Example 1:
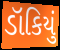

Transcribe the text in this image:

ડૉકિયું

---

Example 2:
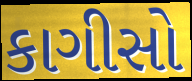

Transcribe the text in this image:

કાગીસો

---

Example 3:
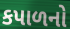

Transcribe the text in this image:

કપાળનો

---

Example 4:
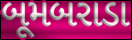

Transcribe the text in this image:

બૂમબરાડા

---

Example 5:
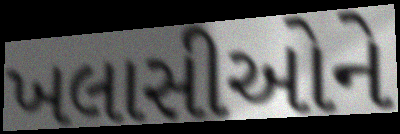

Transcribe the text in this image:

ખલાસીઓને